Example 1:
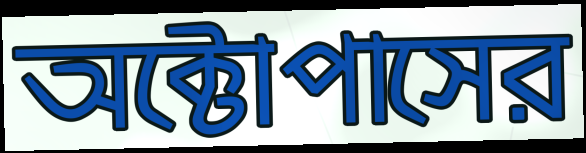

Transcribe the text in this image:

অক্টোপাসের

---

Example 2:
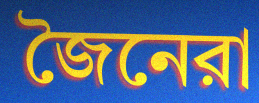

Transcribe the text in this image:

জৈনেরা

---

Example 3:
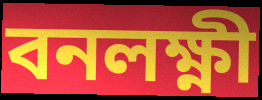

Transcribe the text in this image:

বনলক্ষ্ণী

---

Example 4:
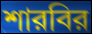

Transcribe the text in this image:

শারবির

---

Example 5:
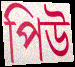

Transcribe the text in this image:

পিউ